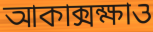
আকাক্সক্ষাও